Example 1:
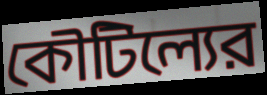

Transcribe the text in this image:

কৌটিল্যের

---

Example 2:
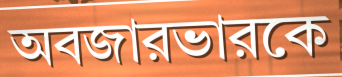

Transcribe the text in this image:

অবজারভারকে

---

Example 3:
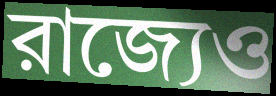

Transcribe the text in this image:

রাজ্যেও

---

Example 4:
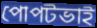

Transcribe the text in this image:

পোপটভাই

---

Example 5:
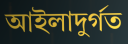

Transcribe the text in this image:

আইলাদুর্গত